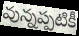
వున్నప్పటికీ